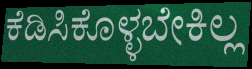
ಕೆಡಿಸಿಕೊಳ್ಳಬೇಕಿಲ್ಲ